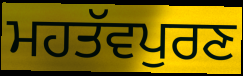
ਮਹਤੱਵਪੁਰਣ